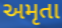
અમૃતા